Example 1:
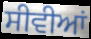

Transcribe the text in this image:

ਸੀਵੀਆਂ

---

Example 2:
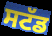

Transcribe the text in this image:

ਸਟੱਡ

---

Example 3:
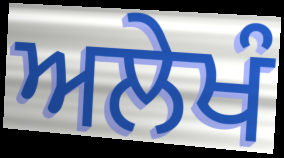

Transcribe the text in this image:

ਅਲੇਖੰ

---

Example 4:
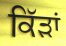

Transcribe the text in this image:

ਕਿੱੜਾਂ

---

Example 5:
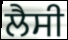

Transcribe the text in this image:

ਲੈਸੀ